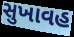
સુખાવહ